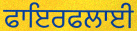
ਫਾਇਰਫਲਾਈ